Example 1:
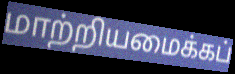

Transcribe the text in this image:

மாற்றியமைக்கப்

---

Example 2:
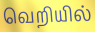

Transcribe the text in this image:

வெறியில்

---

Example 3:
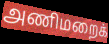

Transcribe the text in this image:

அணிமறைக்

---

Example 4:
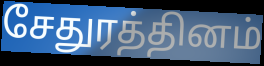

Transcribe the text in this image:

சேதுரத்தினம்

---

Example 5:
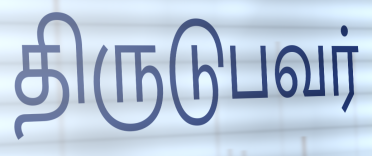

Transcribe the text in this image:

திருடுபவர்